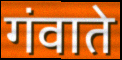
गंवाते